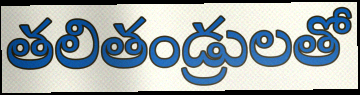
తలితండ్రులతో